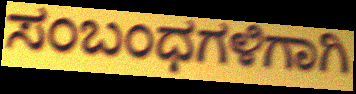
ಸಂಬಂಧಗಳಿಗಾಗಿ